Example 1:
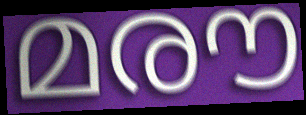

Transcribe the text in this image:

മരൗ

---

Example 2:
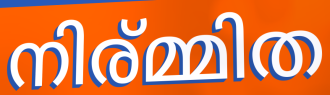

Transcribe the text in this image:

നിര്മ്മിത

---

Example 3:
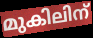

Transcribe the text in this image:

മുകിലിന്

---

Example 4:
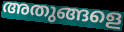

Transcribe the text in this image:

അതുങ്ങളെ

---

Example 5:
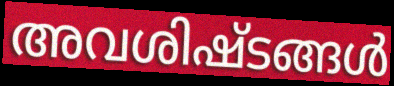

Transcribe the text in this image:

അവശിഷ്ടങ്ങൾ